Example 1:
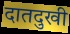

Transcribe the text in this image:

दातदुखी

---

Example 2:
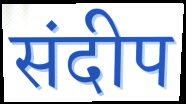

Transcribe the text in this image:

संदीप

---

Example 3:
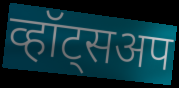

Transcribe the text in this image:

व्हॉट्सअप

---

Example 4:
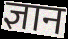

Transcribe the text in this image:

ज्ञान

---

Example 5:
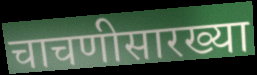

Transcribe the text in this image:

चाचणीसारख्या